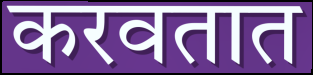
करवतात